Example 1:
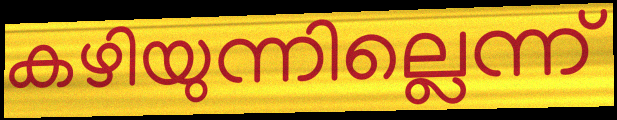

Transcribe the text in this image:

കഴിയുന്നില്ലെന്ന്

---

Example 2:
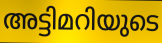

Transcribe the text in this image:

അട്ടിമറിയുടെ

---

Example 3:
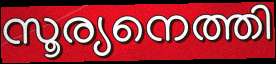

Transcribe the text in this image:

സൂര്യനെത്തി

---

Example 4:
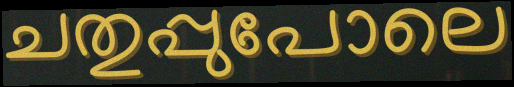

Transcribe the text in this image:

ചതുപ്പുപോലെ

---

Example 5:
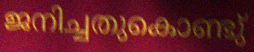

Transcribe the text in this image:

ജനിച്ചതുകൊണ്ടു്